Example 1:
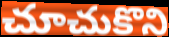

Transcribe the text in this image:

చూచుకొని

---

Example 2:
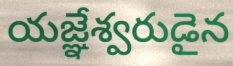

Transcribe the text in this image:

యజ్ఞేశ్వరుడైన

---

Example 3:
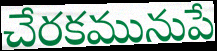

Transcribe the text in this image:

చేరకమునుపే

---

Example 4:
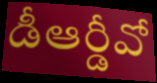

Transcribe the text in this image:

డీఆర్డీవో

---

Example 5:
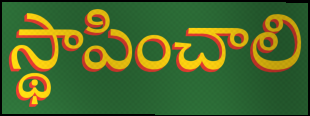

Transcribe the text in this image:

స్థాపించాలి